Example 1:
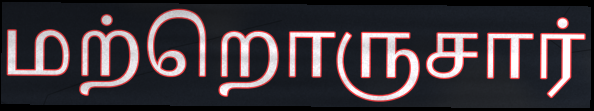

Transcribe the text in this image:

மற்றொருசார்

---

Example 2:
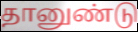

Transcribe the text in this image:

தானுண்டு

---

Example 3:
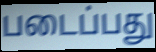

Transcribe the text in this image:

படைப்பது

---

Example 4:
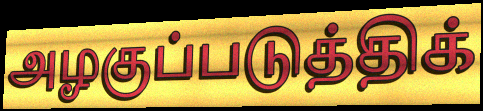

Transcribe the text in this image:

அழகுப்படுத்திக்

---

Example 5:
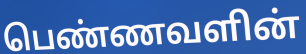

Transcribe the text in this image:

பெண்ணவளின்